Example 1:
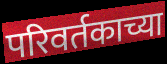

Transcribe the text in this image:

परिवर्तकाच्या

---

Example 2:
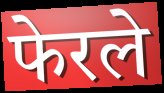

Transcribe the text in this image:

फेरले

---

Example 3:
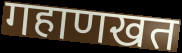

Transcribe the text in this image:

गहाणखत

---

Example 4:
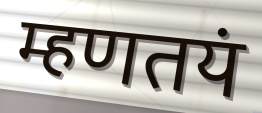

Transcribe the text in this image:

म्हणतयं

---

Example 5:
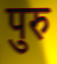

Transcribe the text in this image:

पुरु